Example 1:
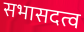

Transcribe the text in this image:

सभासदत्व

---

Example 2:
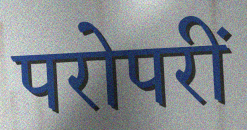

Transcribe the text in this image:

परोपरीं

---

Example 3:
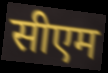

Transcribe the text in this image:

सीएम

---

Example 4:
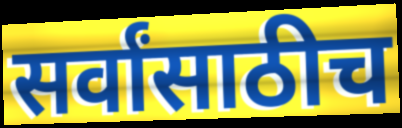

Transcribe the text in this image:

सर्वांसाठीच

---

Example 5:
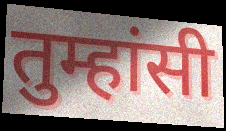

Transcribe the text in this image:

तुम्हांसी